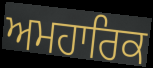
ਅਮਹਾਰਿਕ